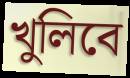
খুলিবে